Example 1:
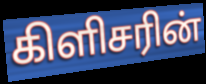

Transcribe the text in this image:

கிளிசரின்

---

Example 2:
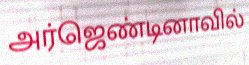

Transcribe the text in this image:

அர்ஜெண்டினாவில்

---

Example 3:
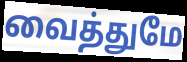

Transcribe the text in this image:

வைத்துமே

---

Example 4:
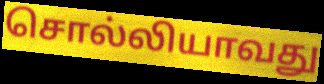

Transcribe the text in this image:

சொல்லியாவது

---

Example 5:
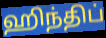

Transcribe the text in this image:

ஹிந்திப்